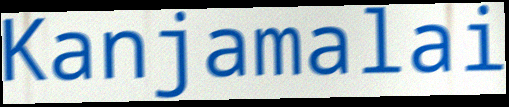
Kanjamalai